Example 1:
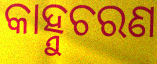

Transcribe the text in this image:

କାହ୍ନୁଚରଣ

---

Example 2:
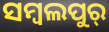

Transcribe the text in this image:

ସମ୍ବଲପୁର୍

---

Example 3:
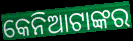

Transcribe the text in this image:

କେନିଆଟାଙ୍କର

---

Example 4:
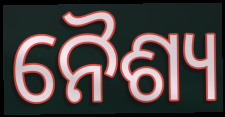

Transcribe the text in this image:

ନୈଶ୍ୟ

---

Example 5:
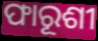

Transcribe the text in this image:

ଫାରୂଶୀ